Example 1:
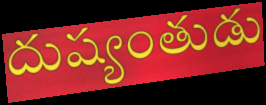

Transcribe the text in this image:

దుష్యంతుడు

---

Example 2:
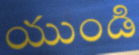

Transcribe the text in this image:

యుండి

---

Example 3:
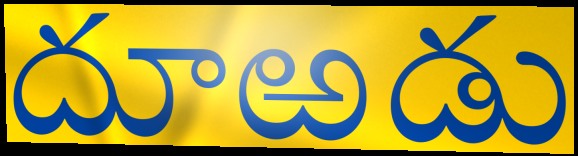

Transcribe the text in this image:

దూఱడు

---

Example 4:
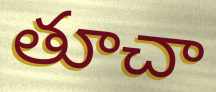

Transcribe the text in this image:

తూచా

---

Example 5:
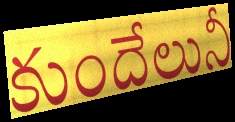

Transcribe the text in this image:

కుందేలునీ